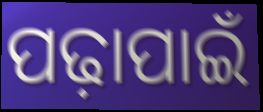
ପଢ଼ାପାଇଁ